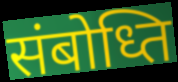
संबोध्ति